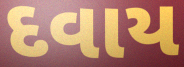
દવાય